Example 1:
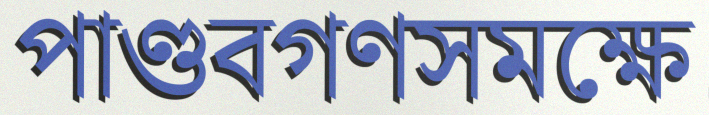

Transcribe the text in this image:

পাণ্ডবগণসমক্ষে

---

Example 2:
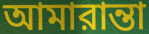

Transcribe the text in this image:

আমারান্তা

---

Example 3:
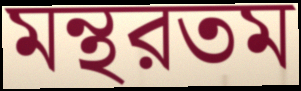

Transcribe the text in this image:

মন্থরতম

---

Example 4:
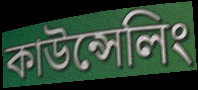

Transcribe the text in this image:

কাউন্সেলিং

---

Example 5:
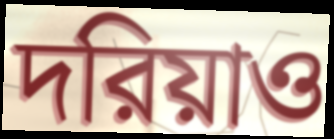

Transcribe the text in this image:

দরিয়াও